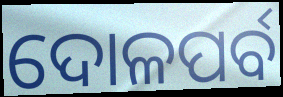
ଦୋଳପର୍ବ